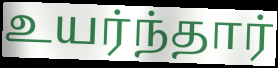
உயர்ந்தார்